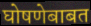
घोषणेबाबत